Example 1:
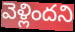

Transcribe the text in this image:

వెళ్లిందని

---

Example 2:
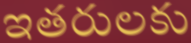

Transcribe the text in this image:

ఇతరులకు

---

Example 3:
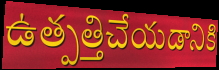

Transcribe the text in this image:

ఉత్పత్తిచేయడానికి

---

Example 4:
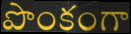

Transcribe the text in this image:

పొంకంగా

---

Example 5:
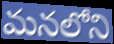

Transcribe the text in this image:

మనలోని